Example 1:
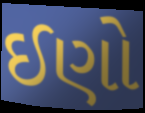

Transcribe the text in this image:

ઈણો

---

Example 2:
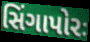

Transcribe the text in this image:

સિંગાપોરઃ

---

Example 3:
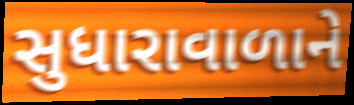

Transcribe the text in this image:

સુધારાવાળાને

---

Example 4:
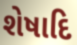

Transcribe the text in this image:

શેષાદિ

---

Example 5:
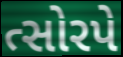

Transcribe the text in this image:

ત્સોરપે